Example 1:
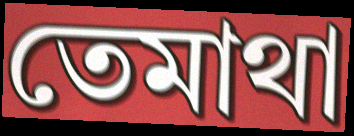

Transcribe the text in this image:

তেমাথা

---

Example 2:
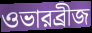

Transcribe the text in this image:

ওভারব্রীজ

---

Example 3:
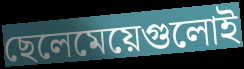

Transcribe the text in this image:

ছেলেমেয়েগুলোই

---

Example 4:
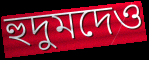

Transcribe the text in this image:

হুদুমদেও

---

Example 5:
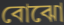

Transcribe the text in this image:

বোঝো